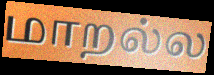
மாறல்ல